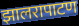
झालरापाटण